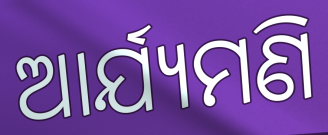
ଆର୍ଯ୍ୟମଣି